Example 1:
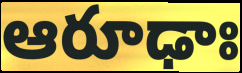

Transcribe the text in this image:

ఆరూఢాః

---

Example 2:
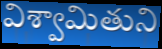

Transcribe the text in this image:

విశ్వామితుని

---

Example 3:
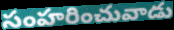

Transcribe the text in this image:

సంహరించువాడు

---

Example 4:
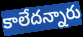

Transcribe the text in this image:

కాలేదన్నారు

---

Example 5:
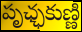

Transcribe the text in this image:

పృఛ్ఛకుణ్ణి